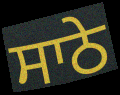
ਸਾਠੇ